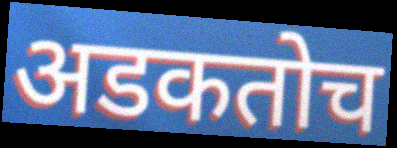
अडकतोच